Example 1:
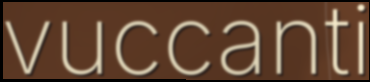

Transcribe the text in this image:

vuccanti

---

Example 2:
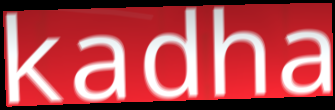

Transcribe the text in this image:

kadha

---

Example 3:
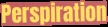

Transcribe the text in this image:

Perspiration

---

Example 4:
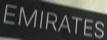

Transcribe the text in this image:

EMIRATES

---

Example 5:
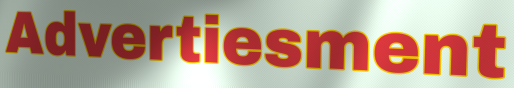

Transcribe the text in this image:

Advertiesment